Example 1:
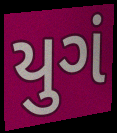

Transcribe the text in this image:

યુગં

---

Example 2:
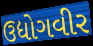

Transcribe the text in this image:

ઉદ્યોગવીર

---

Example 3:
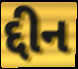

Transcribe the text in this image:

દ્દીન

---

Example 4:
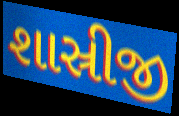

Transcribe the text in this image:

શાસ્રીજી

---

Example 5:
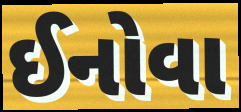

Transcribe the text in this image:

ઈનોવા